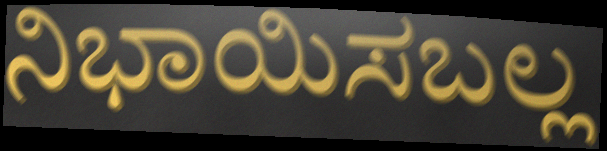
ನಿಭಾಯಿಸಬಲ್ಲ